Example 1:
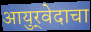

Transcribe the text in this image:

आयुर्वेदाचा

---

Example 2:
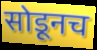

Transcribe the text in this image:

सोडूनच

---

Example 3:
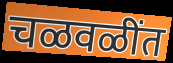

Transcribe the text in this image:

चळवळींत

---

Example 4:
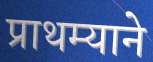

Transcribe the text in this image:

प्राथम्याने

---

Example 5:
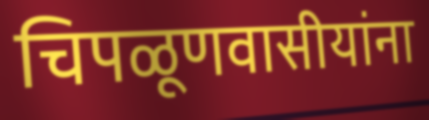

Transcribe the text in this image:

चिपळूणवासीयांना